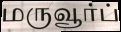
மருவூர்ப்